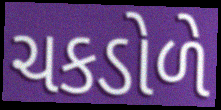
ચકડોળે